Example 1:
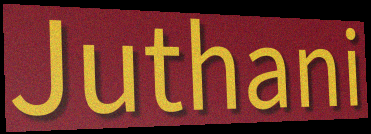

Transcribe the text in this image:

Juthani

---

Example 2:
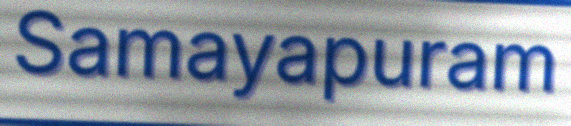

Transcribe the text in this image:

Samayapuram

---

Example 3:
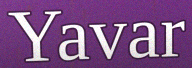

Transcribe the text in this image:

Yavar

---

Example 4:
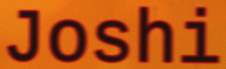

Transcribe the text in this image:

Joshi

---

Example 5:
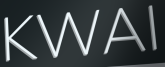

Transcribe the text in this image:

KWAI